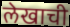
लेखाची